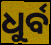
ଧୁର୍ବ